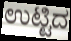
ಉಟ್ಟಿದ